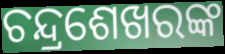
ଚନ୍ଦ୍ରଶେଖରଙ୍କ